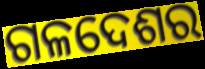
ଗଳଦେଶର